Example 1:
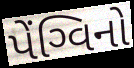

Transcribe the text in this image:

પેંગ્વિનો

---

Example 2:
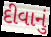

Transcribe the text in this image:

દીવાનું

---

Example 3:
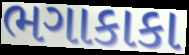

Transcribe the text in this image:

ભગાકાકા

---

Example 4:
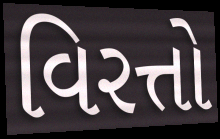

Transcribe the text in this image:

વિરત્તો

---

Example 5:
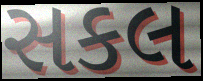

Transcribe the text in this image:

સકલ